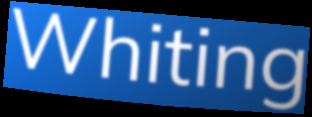
Whiting